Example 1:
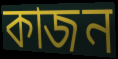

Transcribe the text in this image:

কাজন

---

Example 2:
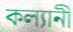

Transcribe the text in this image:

কল্যানী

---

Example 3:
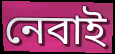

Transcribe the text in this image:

নেবাই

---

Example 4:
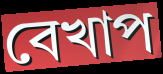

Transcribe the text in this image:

বেখাপ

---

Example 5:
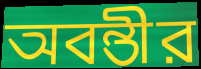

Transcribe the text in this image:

অবন্তীর